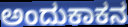
ಅಂದುಕಾಕನ